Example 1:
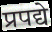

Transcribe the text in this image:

प्रपद्ये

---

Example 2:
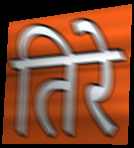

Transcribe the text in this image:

तिरे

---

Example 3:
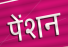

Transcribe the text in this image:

पेंशन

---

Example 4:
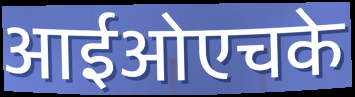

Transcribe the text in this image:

आईओएचके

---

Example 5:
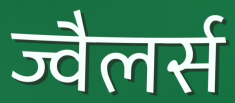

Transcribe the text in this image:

ज्वैलर्स